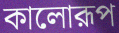
কালোরূপ